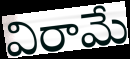
విరామే